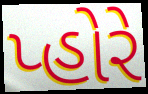
પ્હોરે